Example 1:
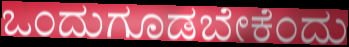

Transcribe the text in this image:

ಒಂದುಗೂಡಬೇಕೆಂದು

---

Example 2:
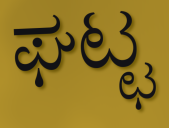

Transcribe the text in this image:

ಘಟ್ಟ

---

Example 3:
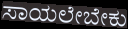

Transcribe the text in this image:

ಸಾಯಲೇಬೇಕು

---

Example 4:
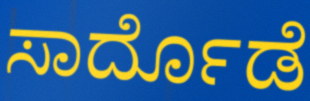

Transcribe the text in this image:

ಸಾರ್ದೊಡೆ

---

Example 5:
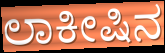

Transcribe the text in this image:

ಲಾಕೀಷಿನ